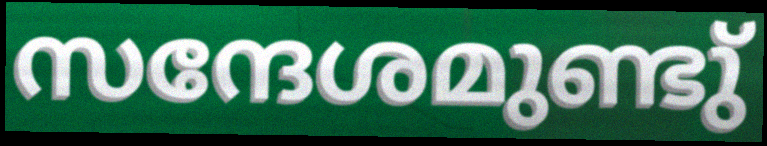
സന്ദേശമുണ്ടു്